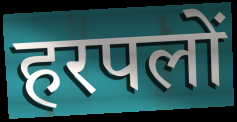
हरपलों